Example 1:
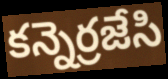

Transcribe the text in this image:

కన్నెర్రజేసి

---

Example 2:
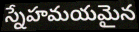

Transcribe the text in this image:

స్నేహమయమైన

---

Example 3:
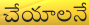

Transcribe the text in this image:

చేయాలనే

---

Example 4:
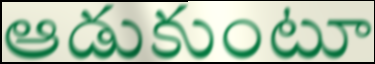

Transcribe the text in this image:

ఆడుకుంటూ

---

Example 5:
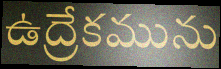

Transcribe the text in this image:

ఉద్రేకమును